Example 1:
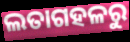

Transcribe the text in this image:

ଲତାଗହଳରୁ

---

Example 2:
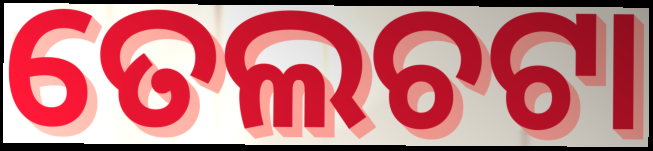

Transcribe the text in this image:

ତେଲଚଟା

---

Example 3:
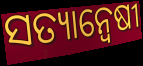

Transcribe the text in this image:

ସତ୍ୟାନ୍ଵେଷୀ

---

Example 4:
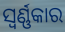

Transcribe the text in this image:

ସ୍ୱର୍ଣ୍ଣକାର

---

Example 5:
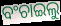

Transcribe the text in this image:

ବଂଚାଇଲୁ